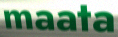
maata